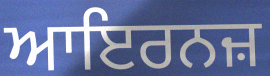
ਆਇਰਨਜ਼